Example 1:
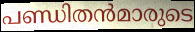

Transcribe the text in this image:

പണ്ഡിതൻമാരുടെ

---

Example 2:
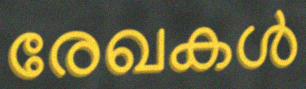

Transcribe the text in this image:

രേഖകൾ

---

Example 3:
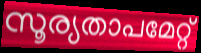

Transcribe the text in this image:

സൂര്യതാപമേറ്റ്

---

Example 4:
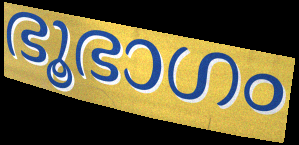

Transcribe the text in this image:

ഭൂഭാഗം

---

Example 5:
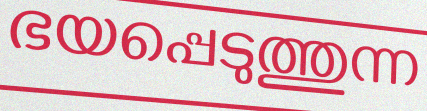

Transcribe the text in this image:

ഭയപ്പെടുത്തുന്ന